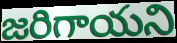
జరిగాయని